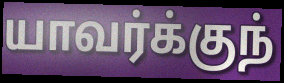
யாவர்க்குந்